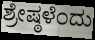
ಶ್ರೇಷ್ಠಳೆಂದು